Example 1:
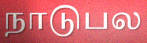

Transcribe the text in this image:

நாடுபல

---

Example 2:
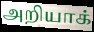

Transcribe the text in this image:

அறியாக்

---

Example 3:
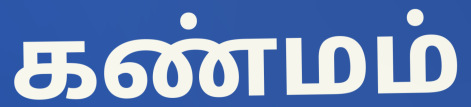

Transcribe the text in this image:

கண்மம்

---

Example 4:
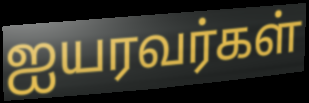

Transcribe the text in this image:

ஐயரவர்கள்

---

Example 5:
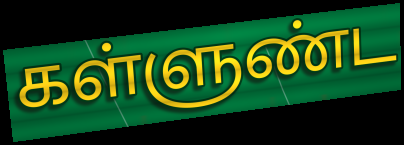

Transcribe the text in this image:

கள்ளுண்ட